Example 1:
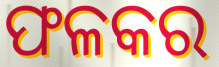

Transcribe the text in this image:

ଫଳକର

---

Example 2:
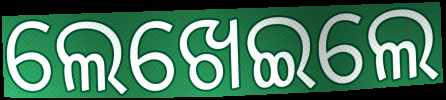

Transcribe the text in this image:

ଲେଖେଇଲେ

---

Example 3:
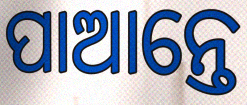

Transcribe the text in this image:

ପାଆନ୍ତେ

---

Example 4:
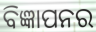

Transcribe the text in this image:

ବିଜ୍ଞାପନର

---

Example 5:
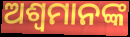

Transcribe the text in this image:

ଅଶ୍ୱମାନଙ୍କ